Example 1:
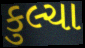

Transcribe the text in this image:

કુલ્ચા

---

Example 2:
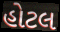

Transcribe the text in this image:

હોટલ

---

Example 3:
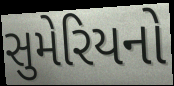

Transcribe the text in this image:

સુમેરિયનો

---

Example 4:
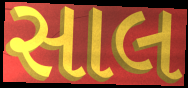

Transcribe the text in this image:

સાલ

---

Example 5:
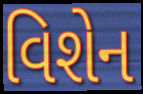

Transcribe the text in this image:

વિશેન